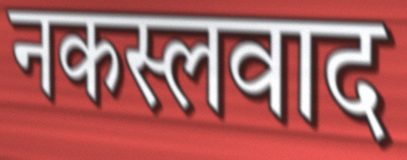
नकस्लवाद